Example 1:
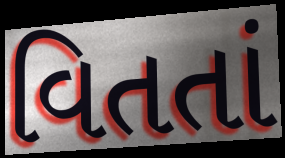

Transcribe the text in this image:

વિતતાં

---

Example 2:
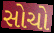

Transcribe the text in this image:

સોચો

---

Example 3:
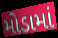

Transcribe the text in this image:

મોડામાં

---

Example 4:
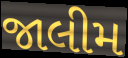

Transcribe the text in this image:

જાલીમ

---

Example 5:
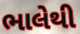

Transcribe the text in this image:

ભાલેથી